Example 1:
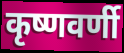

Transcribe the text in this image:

कृष्णवर्णी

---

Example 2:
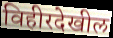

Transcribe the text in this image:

विहीरदेखील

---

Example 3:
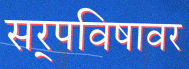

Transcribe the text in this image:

सर्पविषावर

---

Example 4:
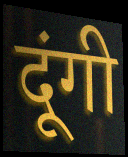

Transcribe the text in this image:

दूंगी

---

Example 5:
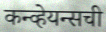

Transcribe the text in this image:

कन्व्हेयन्सची